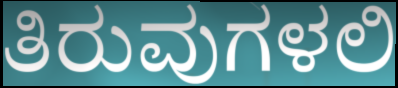
ತಿರುವುಗಳಲಿ